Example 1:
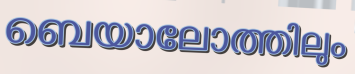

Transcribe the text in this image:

ബെയാലോത്തിലും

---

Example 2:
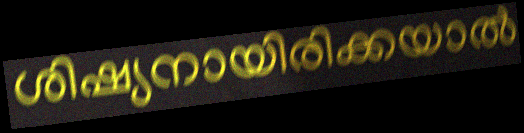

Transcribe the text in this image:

ശിഷ്യനായിരിക്കയാൽ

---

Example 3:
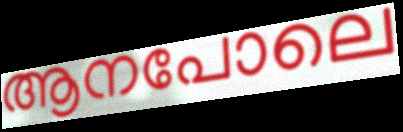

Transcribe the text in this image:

ആനപോലെ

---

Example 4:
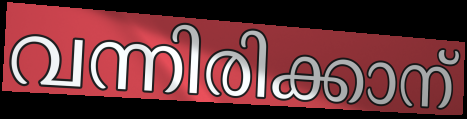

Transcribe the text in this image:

വന്നിരിക്കാന്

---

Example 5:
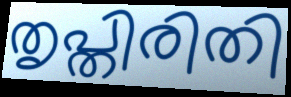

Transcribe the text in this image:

തൃപ്തിരിതി